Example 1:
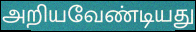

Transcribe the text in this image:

அறியவேண்டியது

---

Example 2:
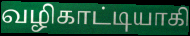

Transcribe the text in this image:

வழிகாட்டியாகி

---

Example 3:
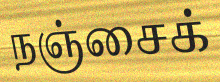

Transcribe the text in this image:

நஞ்சைக்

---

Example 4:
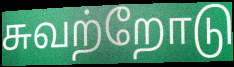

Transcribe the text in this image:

சுவற்றோடு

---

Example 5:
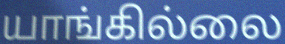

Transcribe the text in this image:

யாங்கில்லை